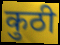
कुठी